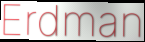
Erdman